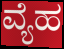
ವ್ಯೆಹ